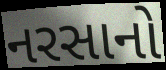
નરસાનો